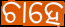
ଚାହେ